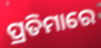
ପ୍ରତିମାରେ